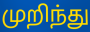
முறிந்து